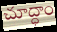
చూద్ధాం